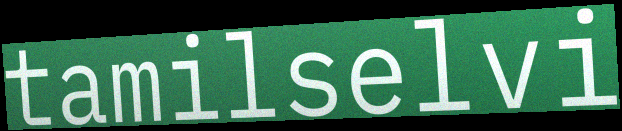
tamilselvi